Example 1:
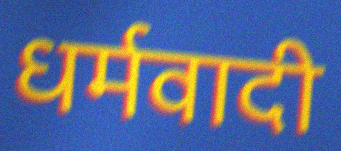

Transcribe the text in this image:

धर्मवादी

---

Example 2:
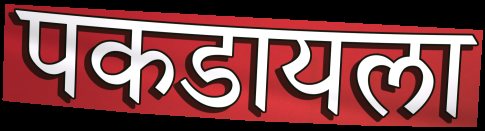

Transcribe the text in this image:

पकडायला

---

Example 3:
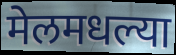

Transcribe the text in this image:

मेलमधल्या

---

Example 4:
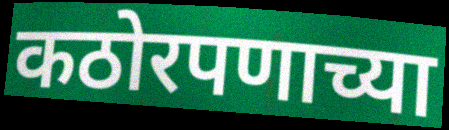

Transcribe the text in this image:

कठोरपणाच्या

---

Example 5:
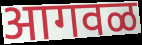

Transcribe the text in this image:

आगवळ